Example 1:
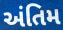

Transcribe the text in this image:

અંતિમ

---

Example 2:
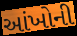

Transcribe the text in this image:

આંખોની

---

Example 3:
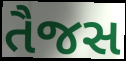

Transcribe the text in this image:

તૈજસ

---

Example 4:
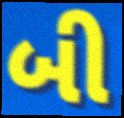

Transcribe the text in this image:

બી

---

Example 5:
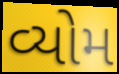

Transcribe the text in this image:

વ્યોમ